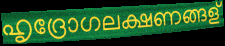
ഹൃദ്രോഗലക്ഷണങ്ങള്